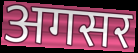
अगसर